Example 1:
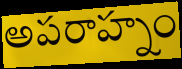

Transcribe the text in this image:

అపరాహ్నం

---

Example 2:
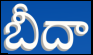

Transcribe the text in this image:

బీదా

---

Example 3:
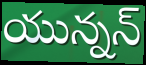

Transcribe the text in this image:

యున్నన్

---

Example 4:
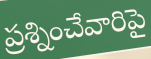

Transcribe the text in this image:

ప్రశ్నించేవారిపై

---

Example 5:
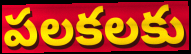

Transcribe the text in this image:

పలకలకు